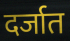
दर्जात